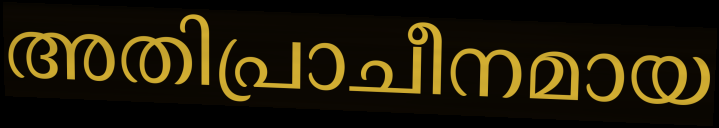
അതിപ്രാചീനമായ